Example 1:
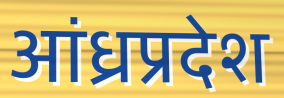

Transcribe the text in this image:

आंध्रप्रदेश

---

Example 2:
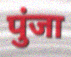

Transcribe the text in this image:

पुंजा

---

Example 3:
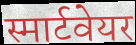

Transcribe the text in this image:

स्मार्टवेयर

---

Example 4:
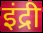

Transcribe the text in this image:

इंद्री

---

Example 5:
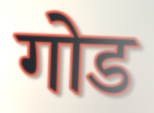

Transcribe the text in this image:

गोड